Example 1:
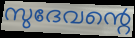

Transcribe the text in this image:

സുദേവന്റെ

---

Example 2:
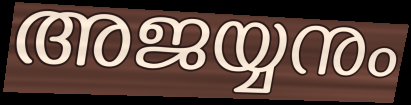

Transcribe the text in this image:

അജയ്യനും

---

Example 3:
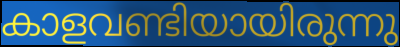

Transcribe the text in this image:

കാളവണ്ടിയായിരുന്നു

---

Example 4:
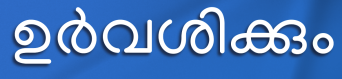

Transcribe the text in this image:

ഉർവശിക്കും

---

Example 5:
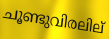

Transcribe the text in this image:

ചൂണ്ടുവിരലില്